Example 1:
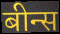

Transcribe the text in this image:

बीन्स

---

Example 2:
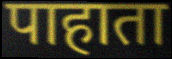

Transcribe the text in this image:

पाहाता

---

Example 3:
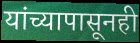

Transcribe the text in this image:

यांच्यापासूनही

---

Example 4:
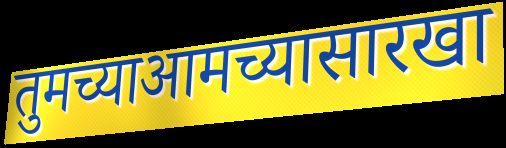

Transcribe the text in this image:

तुमच्याआमच्यासारखा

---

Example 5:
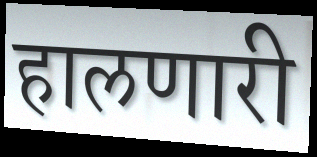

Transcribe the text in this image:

हालणारी